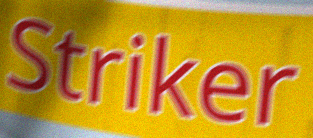
Striker